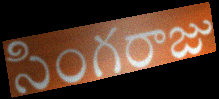
సింగరాజు